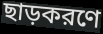
ছাড়করণে